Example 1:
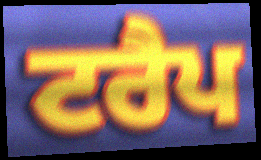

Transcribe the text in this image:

ਟਰੈਪ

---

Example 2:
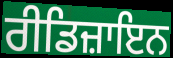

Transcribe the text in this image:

ਰੀਡਿਜ਼ਾਇਨ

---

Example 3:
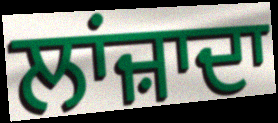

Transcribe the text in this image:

ਲਾਂਜ਼ਾਦਾ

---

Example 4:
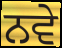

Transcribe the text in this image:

ਨਵੇ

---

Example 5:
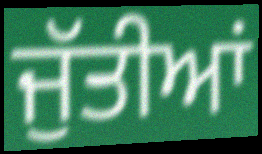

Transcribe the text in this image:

ਜੁੱਤੀਆਂ